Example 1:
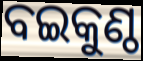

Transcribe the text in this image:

ବଇକୁଣ୍ଠ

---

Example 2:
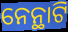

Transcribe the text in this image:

ନେନ୍ଥାଟି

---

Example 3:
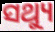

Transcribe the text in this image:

ସଥ୍ୟୁ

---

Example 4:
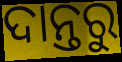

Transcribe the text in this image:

ଦାନ୍ତରୁ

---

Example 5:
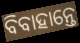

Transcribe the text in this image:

ବିବାହାନ୍ତେ